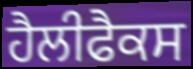
ਹੈਲੀਫੈਕਸ